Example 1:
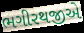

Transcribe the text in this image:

ભગીરથજીએ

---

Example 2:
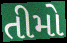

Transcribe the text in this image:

તીમો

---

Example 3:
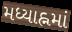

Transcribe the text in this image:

મધ્યાહ્નમાં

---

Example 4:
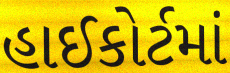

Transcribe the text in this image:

હાઈકોર્ટમાં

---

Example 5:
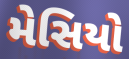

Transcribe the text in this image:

મેસિયો